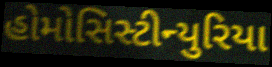
હોમોસિસ્ટીન્યુરિયા